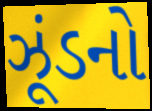
ઝૂંડનો